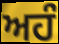
ਅਹੰ